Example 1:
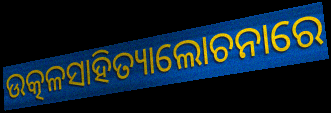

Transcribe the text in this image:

ଉତ୍କଳସାହିତ୍ୟାଲୋଚନାରେ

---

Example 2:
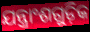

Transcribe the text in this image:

ଯନ୍ତ୍ରାଂଶଗୁଡ଼ିକ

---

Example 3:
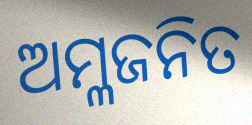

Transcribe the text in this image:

ଅମ୍ଳଜନିତ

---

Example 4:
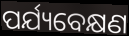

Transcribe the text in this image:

ପର୍ଯ୍ୟବେକ୍ଷଣ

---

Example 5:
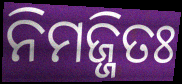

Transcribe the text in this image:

ନିମଜ୍ଜିତଃ